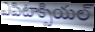
ఎపిటాక్సియల్